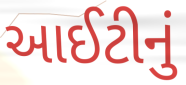
આઈટીનું